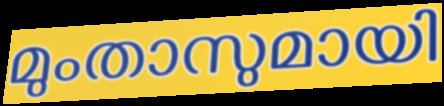
മുംതാസുമായി